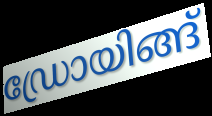
ഡ്രോയിങ്ങ്